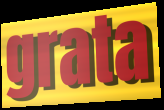
grata